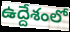
ఉద్దేశంలో